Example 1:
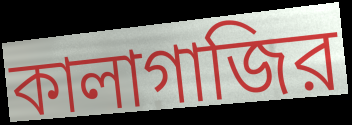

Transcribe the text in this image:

কালাগাজির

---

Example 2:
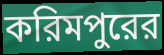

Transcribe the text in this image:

করিমপুরের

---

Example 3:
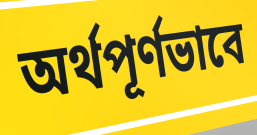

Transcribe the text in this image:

অর্থপূর্ণভাবে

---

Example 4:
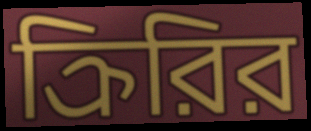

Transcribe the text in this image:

ক্রিরির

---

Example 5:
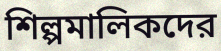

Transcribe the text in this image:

শিল্পমালিকদের